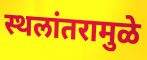
स्थलांतरामुळे